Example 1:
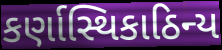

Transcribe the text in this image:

કર્ણાસ્થિકાઠિન્ય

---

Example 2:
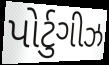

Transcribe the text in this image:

પોર્ટુગીઝ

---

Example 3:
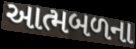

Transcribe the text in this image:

આત્મબળના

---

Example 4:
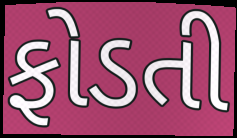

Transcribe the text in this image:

ફોડતી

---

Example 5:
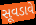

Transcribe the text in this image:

સૂવડાવે